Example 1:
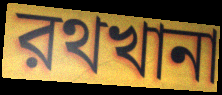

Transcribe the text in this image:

রথখানা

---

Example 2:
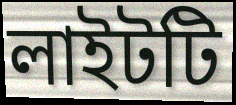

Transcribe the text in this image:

লাইটটি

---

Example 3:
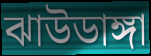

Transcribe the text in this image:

ঝাউডাঙ্গা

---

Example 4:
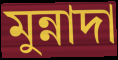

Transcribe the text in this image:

মুন্নাদা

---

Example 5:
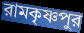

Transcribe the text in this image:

রামকৃষ্ণপুর